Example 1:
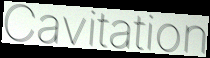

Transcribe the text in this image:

Cavitation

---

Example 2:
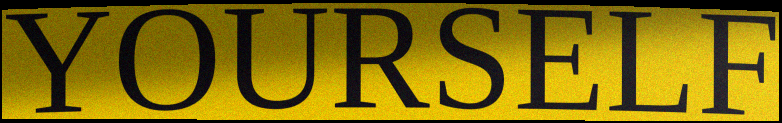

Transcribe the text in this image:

YOURSELF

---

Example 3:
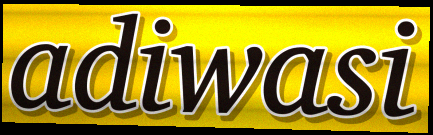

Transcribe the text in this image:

adiwasi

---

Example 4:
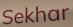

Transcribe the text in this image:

Sekhar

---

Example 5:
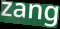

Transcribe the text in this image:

zang